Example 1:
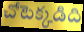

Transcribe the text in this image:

చోటెక్కడిది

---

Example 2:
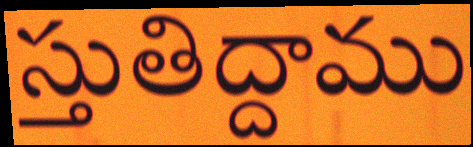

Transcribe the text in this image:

స్తుతిద్దాము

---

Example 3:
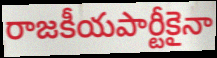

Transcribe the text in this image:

రాజకీయపార్టీకైనా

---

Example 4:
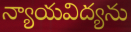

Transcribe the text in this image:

న్యాయవిద్యను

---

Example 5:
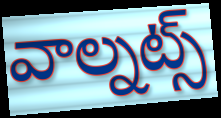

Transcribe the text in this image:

వాల్నట్స్